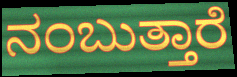
ನಂಬುತ್ತಾರೆ